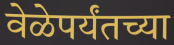
वेळेपर्यंतच्या